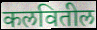
कलवितील